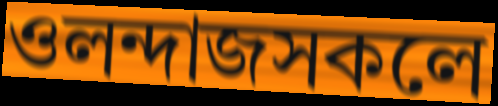
ওলন্দাজসকলে